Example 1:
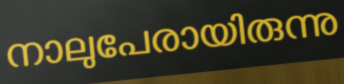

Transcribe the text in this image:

നാലുപേരായിരുന്നു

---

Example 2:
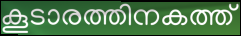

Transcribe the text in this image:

കൂടാരത്തിനകത്ത്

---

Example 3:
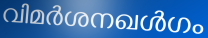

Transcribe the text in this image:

വിമർശനഖൾഗം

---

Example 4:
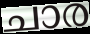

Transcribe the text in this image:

ചാര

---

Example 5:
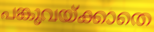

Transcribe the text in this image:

പങ്കുവയ്ക്കാതെ